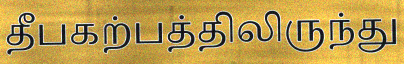
தீபகற்பத்திலிருந்து